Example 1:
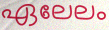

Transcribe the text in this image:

ഏലേലം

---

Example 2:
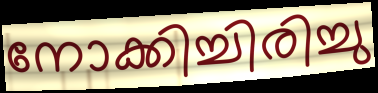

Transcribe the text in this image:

നോക്കിച്ചിരിച്ചു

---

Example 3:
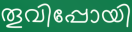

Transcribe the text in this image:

തൂവിപ്പോയി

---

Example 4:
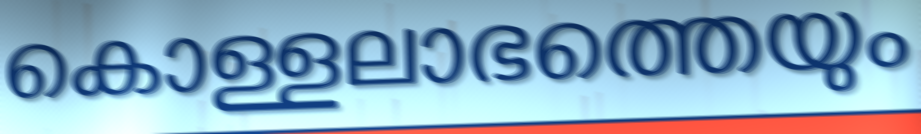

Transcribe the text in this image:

കൊള്ളലാഭത്തെയും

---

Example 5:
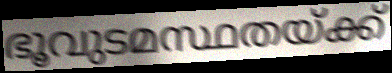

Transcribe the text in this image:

ഭൂവുടമസ്ഥതയ്ക്ക്